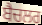
ਬੈਚਲਰ